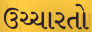
ઉચ્ચારતો